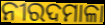
ନୀରଦମାଳା